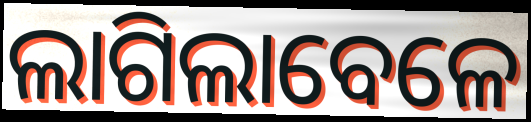
ଲାଗିଲାବେଳେ